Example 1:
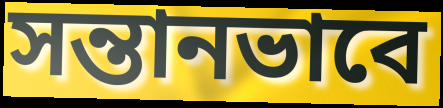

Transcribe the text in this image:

সন্তানভাবে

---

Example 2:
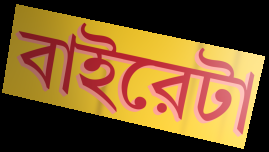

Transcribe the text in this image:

বাইরেটা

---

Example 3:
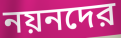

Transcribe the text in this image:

নয়নদের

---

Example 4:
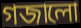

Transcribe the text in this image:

গজালো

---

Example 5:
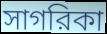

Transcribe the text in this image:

সাগরিকা